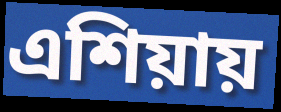
এশিয়ায়